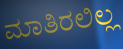
ಮಾತಿರಲಿಲ್ಲ